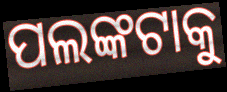
ପଲଙ୍କଟାକୁ